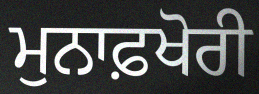
ਮੁਨਾਫ਼ਖੋਰੀ